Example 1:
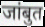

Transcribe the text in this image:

जांबुत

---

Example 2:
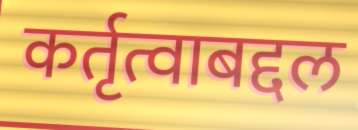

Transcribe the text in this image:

कर्तृत्वाबद्दल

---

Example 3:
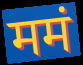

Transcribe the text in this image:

ममं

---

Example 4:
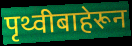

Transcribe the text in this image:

पृथ्वीबाहेरून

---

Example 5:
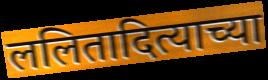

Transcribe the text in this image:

ललितादित्याच्या